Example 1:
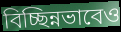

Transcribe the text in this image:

বিচ্ছিন্নভাবেও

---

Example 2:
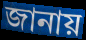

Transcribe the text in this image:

জানায়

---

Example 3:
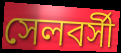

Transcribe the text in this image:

সেলবর্সী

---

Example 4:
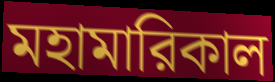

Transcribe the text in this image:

মহামারিকাল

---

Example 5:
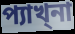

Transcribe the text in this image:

প্যাখ্না